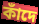
কাঁদে